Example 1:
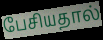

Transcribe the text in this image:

பேசியதால்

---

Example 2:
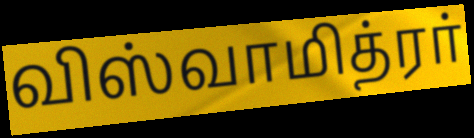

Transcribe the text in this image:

விஸ்வாமித்ரர்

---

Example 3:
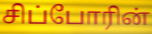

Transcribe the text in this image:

சிப்போரின்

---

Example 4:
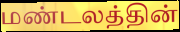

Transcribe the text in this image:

மண்டலத்தின்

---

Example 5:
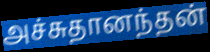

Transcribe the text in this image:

அச்சுதானந்தன்